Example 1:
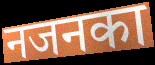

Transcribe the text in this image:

नजनका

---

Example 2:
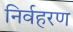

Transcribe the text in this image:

निर्वहरण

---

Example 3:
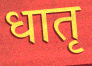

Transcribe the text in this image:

धातृ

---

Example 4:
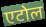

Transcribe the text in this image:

एटोल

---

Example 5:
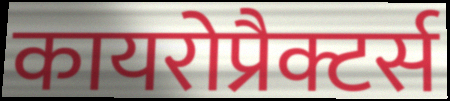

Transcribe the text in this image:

कायरोप्रैक्टर्स